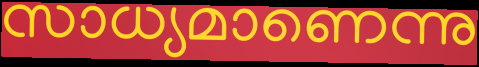
സാധ്യമാണെന്നു